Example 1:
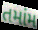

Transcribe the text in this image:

તમાંમ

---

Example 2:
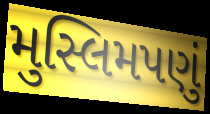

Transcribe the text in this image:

મુસ્લિમપણું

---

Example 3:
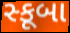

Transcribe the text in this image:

સ્કૂબા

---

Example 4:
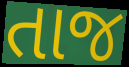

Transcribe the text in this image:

તાજ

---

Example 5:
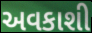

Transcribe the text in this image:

અવકાશી